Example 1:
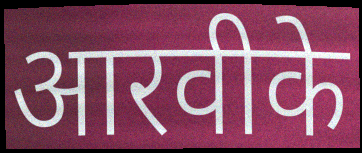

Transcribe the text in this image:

आरवीके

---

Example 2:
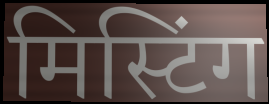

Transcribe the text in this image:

मिस्टिंग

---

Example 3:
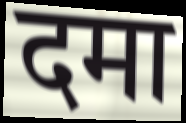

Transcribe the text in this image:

दमा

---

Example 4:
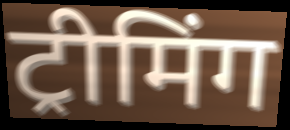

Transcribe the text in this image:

ट्रीमिंग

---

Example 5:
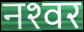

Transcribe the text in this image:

नश्वर